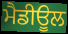
ਮੈਡੀਊਲ